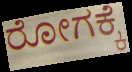
ರೋಗಕ್ಕೆ